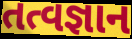
તત્વજ્ઞાન